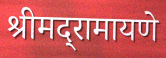
श्रीमद्‌रामायणे